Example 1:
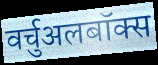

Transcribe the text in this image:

वर्चुअलबॉक्स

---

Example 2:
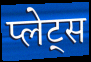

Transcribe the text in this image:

प्‍लेट्स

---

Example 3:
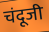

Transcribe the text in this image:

चंदूजी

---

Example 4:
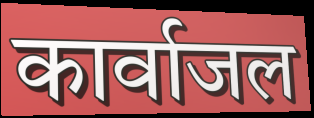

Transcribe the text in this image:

कार्वाजल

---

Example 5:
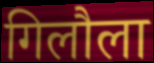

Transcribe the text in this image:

गिलौला